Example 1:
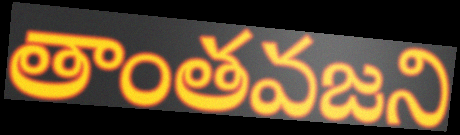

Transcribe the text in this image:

తాంతవజని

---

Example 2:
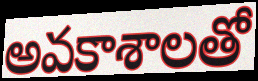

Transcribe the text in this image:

అవకాశాలతో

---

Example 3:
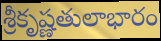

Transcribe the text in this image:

శ్రీకృష్ణతులాభారం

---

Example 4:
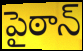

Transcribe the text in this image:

పైఠాన్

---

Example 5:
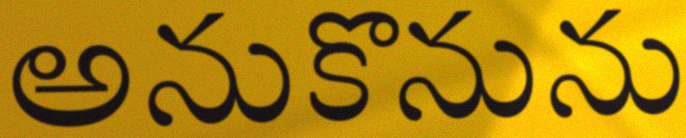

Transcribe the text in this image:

అనుకొనును